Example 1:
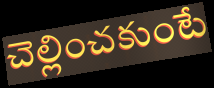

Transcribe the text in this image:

చెల్లించకుంటే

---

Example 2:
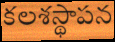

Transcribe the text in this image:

కలశస్థాపన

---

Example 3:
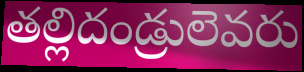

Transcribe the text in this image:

తల్లిదండ్రులెవరు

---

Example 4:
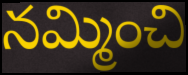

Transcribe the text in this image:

నమ్మించి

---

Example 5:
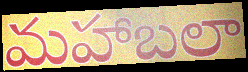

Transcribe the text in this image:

మహాబలా